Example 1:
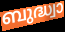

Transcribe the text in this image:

ബുദ്ധ്വാ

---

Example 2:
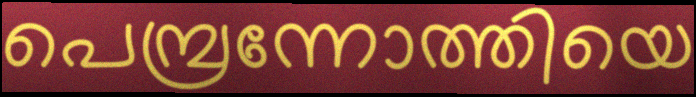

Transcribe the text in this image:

പെമ്പ്രന്നോത്തിയെ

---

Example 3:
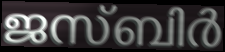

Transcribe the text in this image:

ജസ്ബിർ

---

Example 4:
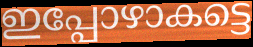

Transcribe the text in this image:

ഇപ്പോഴാകട്ടെ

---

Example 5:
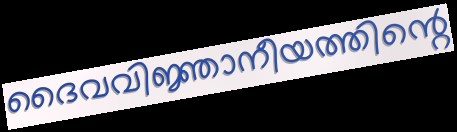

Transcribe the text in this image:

ദൈവവിജ്ഞാനീയത്തിന്റെ